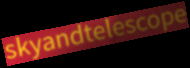
skyandtelescope